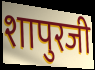
शापुरजी